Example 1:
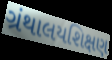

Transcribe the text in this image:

ગ્રંથાલયશિક્ષણ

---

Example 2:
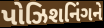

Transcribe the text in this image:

પોઝિશનિંગને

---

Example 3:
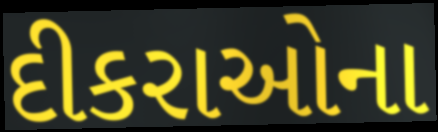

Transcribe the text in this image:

દીકરાઓના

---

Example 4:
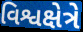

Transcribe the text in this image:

વિશ્વક્ષેત્રે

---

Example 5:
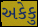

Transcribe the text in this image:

અકેકુ